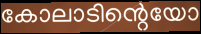
കോലാടിന്റെയോ